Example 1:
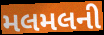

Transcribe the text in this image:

મલમલની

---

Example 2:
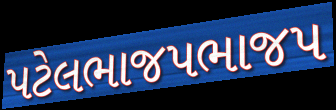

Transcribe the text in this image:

પટેલભાજપભાજપ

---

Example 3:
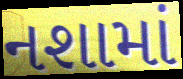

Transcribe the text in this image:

નશામાં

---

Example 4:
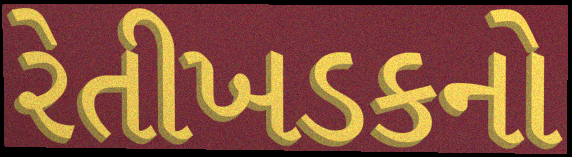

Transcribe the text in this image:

રેતીખડકનો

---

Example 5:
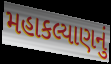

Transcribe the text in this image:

મહાકલ્યાણનું